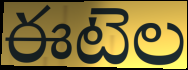
ఈటెల